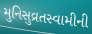
મુનિસુવ્રતસ્વામીની